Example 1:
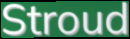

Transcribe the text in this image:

Stroud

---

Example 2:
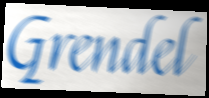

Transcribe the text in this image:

Grendel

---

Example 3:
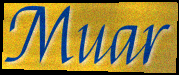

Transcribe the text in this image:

Muar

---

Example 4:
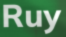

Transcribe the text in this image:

Ruy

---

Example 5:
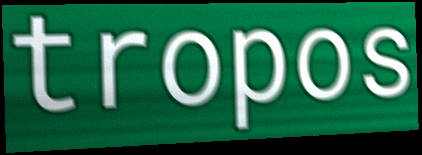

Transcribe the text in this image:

tropos